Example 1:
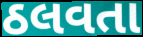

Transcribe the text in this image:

ઠલવતા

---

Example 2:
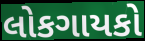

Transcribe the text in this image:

લોકગાયકો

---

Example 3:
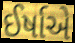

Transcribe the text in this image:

ઈર્ષાએ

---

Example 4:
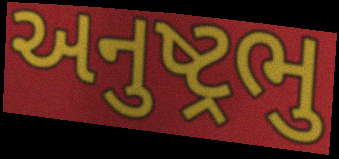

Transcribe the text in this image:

અનુષ્ટ્રભુ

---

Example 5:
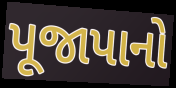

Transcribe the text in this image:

પૂજાપાનો